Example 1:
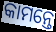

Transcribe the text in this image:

କାମନ୍ତେ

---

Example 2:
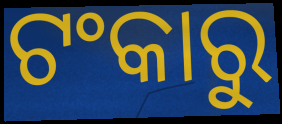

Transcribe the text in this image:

ଟଂକାରୁ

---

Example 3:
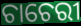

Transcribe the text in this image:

ଚାଚେରୀ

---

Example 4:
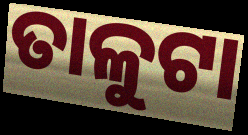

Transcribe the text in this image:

ତାଳୁଟା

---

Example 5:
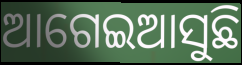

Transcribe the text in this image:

ଆଗେଇଆସୁଛି